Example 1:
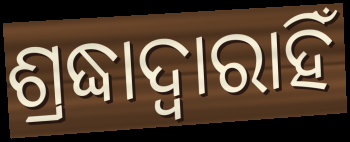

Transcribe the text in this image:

ଶ୍ରଦ୍ଧାଦ୍ୱାରାହିଁ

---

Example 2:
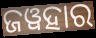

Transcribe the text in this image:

ଜୱହାର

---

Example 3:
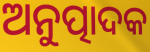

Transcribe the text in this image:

ଅନୁତ୍ପାଦକ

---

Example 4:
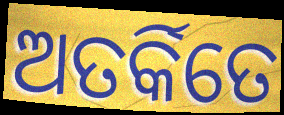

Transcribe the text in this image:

ଅତର୍କିତେ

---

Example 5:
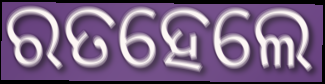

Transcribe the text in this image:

ରତହେଲେ